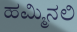
ಹಮ್ಮಿನಲಿ